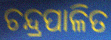
ଚନ୍ଦ୍ରପାଳିତ